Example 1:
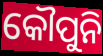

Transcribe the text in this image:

କୌପୁନି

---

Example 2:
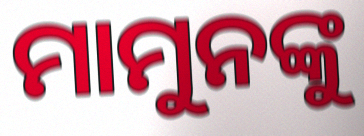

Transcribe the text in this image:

ମାମୁନଙ୍କୁ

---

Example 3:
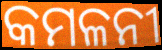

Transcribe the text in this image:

କମଳନୀ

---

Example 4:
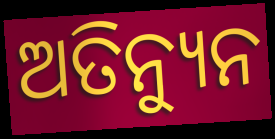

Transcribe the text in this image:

ଅତିନ୍ୟୁନ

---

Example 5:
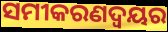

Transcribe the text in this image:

ସମୀକରଣଦ୍ଵୟର